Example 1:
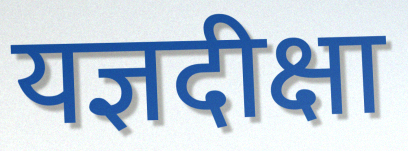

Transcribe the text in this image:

यज्ञदीक्षा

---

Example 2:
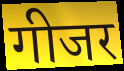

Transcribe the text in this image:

गीजर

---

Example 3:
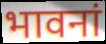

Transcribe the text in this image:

भावनां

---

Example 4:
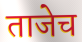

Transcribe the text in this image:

ताजेच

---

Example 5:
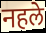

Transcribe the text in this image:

नहले